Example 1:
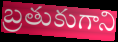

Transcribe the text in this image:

బ్రతుకుగాని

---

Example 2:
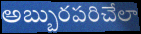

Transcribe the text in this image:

అబ్బురపరిచేలా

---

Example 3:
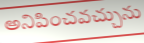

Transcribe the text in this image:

అనిపించవచ్చును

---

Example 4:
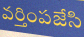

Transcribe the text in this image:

వర్తింపజేసి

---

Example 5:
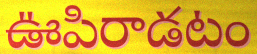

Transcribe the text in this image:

ఊపిరాడటం